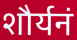
शौर्यनं